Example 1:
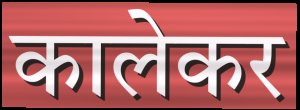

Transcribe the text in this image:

कालेकर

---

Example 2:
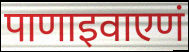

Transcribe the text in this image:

पाणाइवाएणं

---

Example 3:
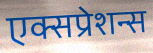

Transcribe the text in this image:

एक्सप्रेशन्स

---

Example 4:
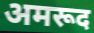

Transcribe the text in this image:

अमरूद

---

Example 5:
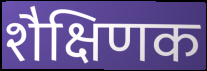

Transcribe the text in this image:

शैक्षिणक